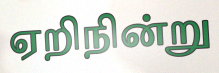
ஏறிநின்று